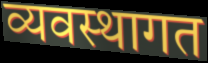
व्यवस्थागत